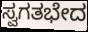
ಸ್ವಗತಭೇದ